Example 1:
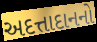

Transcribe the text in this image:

અદત્તાદાનનો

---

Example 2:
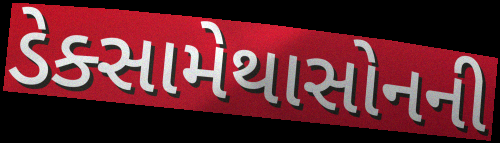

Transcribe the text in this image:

ડેક્સામેથાસોનની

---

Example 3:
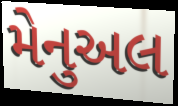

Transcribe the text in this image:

મેનુઅલ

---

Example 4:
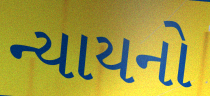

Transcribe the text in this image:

ન્યાયનો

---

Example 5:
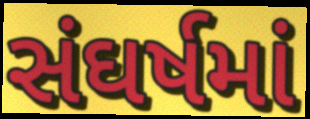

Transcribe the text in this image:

સંઘર્ષમાં